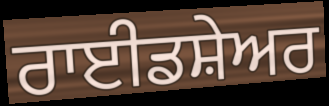
ਰਾਈਡਸ਼ੇਅਰ